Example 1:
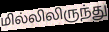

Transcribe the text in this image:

மில்லிலிருந்து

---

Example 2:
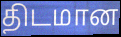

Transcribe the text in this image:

திடமான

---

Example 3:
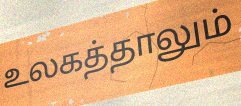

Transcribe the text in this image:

உலகத்தாலும்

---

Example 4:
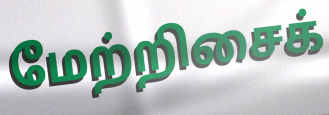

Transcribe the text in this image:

மேற்றிசைக்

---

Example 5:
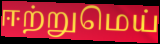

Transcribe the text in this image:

ஈற்றுமெய்